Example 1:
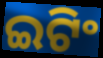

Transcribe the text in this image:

ଇଟିଂ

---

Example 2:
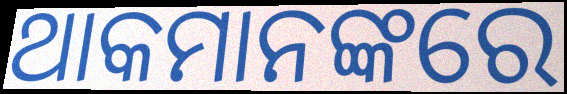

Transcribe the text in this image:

ଥାକମାନଙ୍କରେ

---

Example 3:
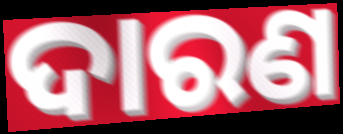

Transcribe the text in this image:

ଦାରଣ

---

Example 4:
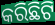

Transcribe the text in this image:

କରିଛିଟି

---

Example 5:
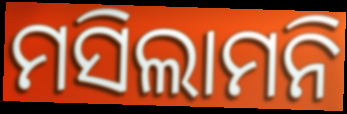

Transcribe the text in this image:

ମସିଲାମନି